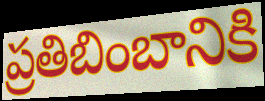
ప్రతిబింబానికి